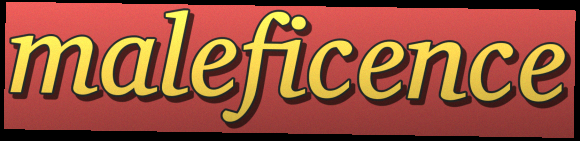
maleficence